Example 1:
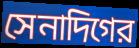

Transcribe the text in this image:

সেনাদিগের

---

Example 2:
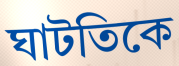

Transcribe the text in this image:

ঘাটতিকে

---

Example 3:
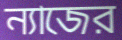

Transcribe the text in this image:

ন্যাজের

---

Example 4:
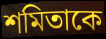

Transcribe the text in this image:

শমিতাকে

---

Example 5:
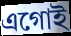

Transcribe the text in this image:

এগোই